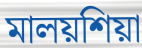
মালয়শিয়া